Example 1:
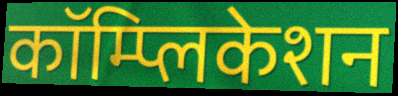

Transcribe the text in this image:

कॉम्प्लिकेशन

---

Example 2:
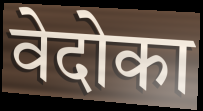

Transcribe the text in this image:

वेदोका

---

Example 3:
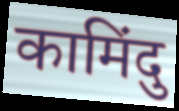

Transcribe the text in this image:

कामिंदु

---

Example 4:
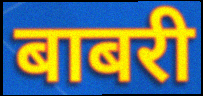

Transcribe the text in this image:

बाबरी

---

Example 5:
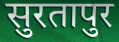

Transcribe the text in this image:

सुरतापुर